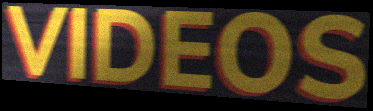
VIDEOS